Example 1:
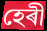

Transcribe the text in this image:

হেৰী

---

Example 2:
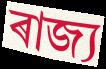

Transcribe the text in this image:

ৰাজ্য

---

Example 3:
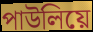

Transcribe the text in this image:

পাউলিয়ে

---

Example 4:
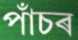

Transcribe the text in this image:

পাঁচৰ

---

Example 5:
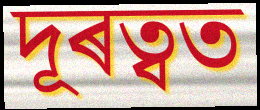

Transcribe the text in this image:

দূৰত্বত